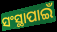
ସଂସ୍ଥାପାଇଁ